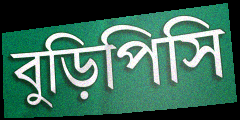
বুড়িপিসি